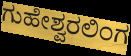
ಗುಹೇಶ್ವರಲಿಂಗ